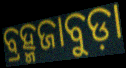
ବ୍ରହ୍ମଜାବୁଡ଼ା